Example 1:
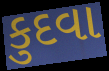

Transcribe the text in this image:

કુદવા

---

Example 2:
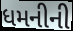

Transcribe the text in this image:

ધમનીની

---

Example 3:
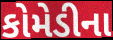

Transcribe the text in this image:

કોમેડીના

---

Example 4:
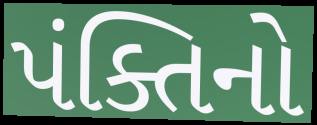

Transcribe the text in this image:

પંક્તિનો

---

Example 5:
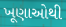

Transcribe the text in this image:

ખૂણાઓથી